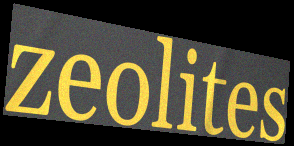
zeolites